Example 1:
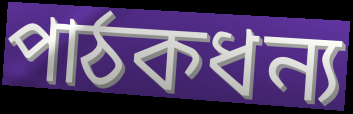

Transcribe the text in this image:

পাঠকধন্য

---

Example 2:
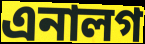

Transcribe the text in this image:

এনালগ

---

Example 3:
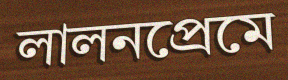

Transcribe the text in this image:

লালনপ্রেমে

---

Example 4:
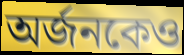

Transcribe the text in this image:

অর্জনকেও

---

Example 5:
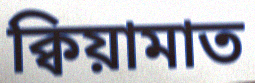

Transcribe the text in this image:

ক্বিয়ামাত